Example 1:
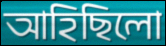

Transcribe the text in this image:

আহিছিলো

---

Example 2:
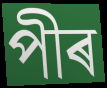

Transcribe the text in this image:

পীৰ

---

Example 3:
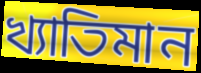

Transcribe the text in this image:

খ্যাতিমান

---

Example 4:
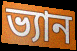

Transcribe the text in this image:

ভ্যান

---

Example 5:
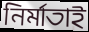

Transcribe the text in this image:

নিৰ্মাতাই